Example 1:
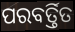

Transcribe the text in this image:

ପରବର୍ତ୍ତିତ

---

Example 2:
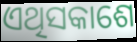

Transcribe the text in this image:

ଏଥିସକାଶେ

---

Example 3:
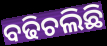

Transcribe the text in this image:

ବଢିଚଲିଛି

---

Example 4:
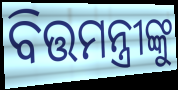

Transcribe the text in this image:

ବିତ୍ତମନ୍ତ୍ରୀଙ୍କୁ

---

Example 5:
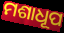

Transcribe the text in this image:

ମଶାଧୂପ